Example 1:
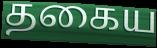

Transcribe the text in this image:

தகைய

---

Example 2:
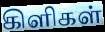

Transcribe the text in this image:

கிளிகள்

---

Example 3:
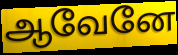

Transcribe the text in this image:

ஆவேனே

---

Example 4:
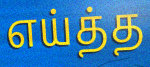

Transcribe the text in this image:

எய்த்த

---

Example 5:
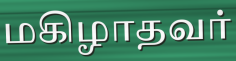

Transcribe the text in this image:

மகிழாதவர்